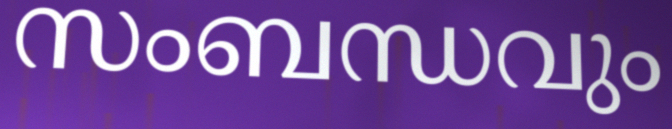
സംബന്ധവും